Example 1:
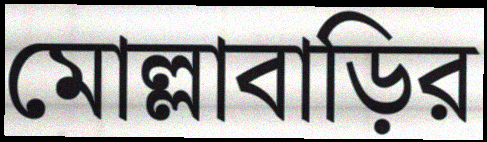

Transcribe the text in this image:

মোল্লাবাড়ির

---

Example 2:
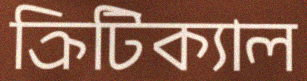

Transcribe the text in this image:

ক্রিটিক্যাল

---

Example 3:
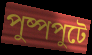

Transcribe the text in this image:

পুষ্পপুটে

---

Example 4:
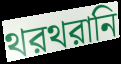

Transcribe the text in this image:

থরথরানি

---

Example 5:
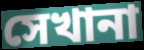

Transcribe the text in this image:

সেখানা